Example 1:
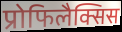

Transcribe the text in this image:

प्रोफिलैक्सिस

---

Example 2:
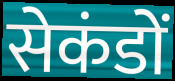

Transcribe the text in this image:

सेकंडों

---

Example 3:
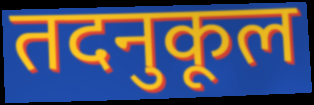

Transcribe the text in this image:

तदनुकूल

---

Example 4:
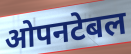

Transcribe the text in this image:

ओपनटेबल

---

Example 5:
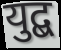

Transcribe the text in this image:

युद्ब